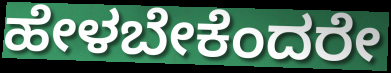
ಹೇಳಬೇಕೆಂದರೇ